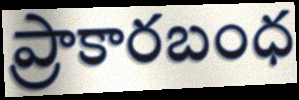
ప్రాకారబంధ